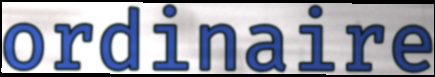
ordinaire